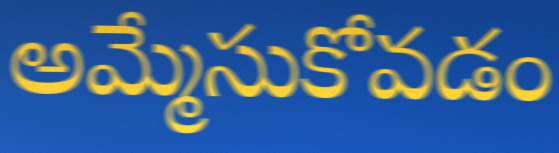
అమ్మేసుకోవడం